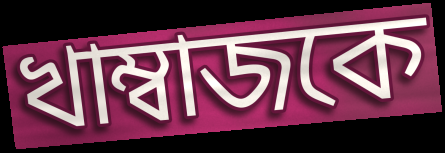
খাম্বাজকে